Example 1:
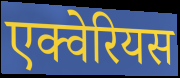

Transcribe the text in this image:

एक्वेरियस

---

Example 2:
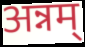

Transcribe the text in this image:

अन्नम्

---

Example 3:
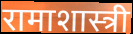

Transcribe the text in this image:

रामाशास्त्री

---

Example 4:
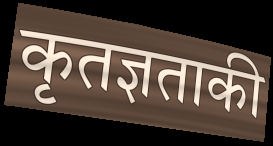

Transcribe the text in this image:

कृतज्ञताकी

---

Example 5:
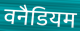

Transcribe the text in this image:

वनैडियम